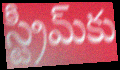
స్ట్రీమ్‌కు